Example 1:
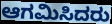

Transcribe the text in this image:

ಆಗಮಿಸಿದರು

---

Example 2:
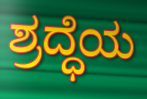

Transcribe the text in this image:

ಶ್ರದ್ಧೆಯ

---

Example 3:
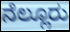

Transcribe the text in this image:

ನೆಲ್ಲೂರು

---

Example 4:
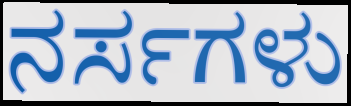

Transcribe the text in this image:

ನರ್ಸಗಳು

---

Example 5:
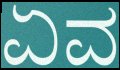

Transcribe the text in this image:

ಏವ